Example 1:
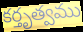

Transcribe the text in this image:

కర్తృత్వము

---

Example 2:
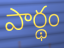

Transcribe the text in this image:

పార్థం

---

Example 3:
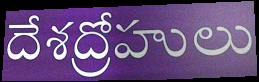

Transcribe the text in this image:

దేశద్రోహులు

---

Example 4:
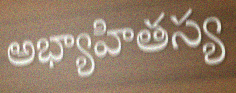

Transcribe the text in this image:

అభ్యాహితస్య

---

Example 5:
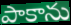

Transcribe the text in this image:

పాకాను